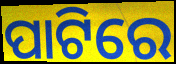
ପାଟିରେ